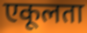
एकूलता